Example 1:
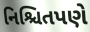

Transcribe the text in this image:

નિશ્ચિતપણે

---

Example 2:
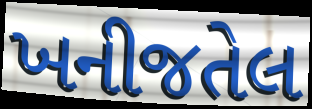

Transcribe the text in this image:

ખનીજતેલ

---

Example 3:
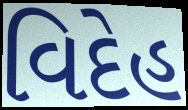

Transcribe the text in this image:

વિદેહ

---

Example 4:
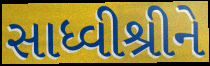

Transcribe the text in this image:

સાધ્વીશ્રીને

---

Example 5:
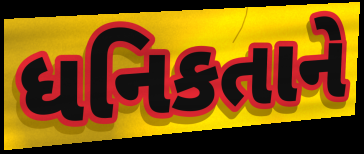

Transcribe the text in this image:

ધનિકતાને